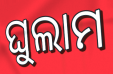
ଘୁଲାମ